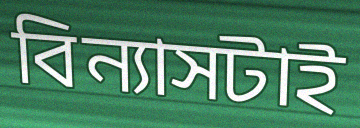
বিন্যাসটাই